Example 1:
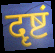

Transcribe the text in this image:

दृष्टं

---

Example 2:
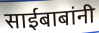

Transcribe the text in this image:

साईबाबांनी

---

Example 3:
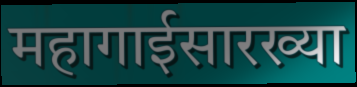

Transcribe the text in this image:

महागाईसारख्या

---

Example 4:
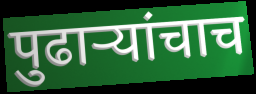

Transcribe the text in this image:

पुढाऱ्यांचाच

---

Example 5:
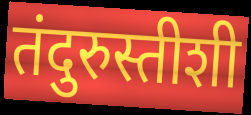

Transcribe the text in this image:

तंदुरुस्तीशी